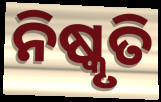
ନିଷ୍କୃତି